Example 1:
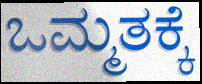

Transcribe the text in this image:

ಒಮ್ಮತಕ್ಕೆ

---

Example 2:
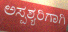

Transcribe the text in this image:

ಅಸ್ಪಶ್ಯರಿಗಾಗಿ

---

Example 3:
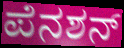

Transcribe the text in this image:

ಪೆನಶನ್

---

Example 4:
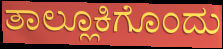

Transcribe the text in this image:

ತಾಲ್ಲೂಕಿಗೊಂದು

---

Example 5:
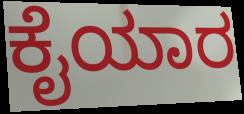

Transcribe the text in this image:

ಕೈಯಾರ